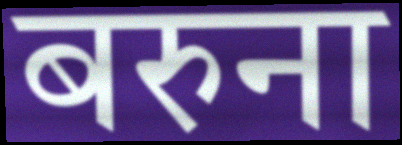
बरुना